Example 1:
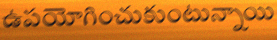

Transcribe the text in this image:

ఉపయోగించుకుంటున్నాయి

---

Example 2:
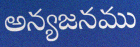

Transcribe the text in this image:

అన్యజనము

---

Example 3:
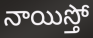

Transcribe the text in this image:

నాయిస్తో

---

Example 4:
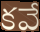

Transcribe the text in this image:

కవే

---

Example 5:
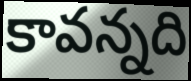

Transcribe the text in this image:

కావన్నది